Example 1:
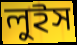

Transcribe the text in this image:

লুইস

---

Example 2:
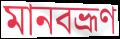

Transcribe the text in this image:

মানবভ্রূণ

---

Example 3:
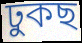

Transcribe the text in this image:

ঢুকছ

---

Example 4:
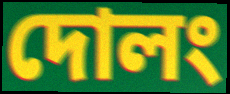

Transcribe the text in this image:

দোলং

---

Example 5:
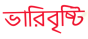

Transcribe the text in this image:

ভারিবৃষ্টি